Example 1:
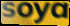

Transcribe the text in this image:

soya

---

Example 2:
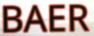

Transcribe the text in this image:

BAER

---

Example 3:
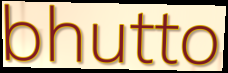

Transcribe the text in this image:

bhutto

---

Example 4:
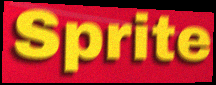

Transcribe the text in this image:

Sprite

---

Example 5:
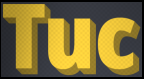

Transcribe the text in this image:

Tuc